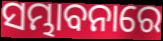
ସମ୍ଭାବନାରେ